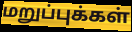
மறுப்புக்கள்